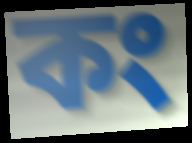
কং